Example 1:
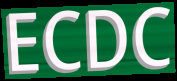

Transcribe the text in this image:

ECDC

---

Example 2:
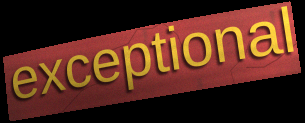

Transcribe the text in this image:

exceptional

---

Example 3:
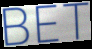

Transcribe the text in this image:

BET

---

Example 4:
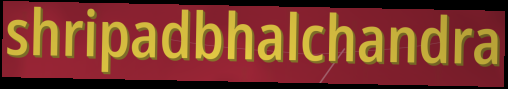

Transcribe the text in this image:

shripadbhalchandra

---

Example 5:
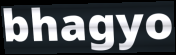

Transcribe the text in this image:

bhagyo